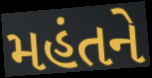
મહંતને